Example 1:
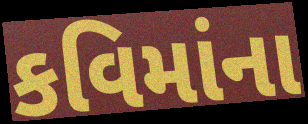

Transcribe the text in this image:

કવિમાંના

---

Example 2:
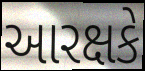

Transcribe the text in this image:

આરક્ષકે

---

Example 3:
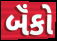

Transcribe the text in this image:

બૅંકો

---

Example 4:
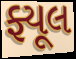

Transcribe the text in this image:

ફ્યૂલ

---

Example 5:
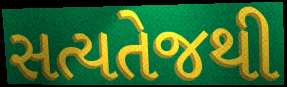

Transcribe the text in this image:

સત્યતેજથી